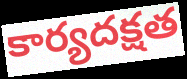
కార్యదక్షత